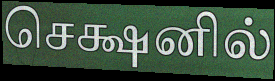
செக்ஷனில்